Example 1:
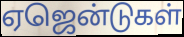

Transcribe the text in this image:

ஏஜென்டுகள்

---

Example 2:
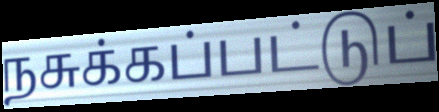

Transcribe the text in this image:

நசுக்கப்பட்டுப்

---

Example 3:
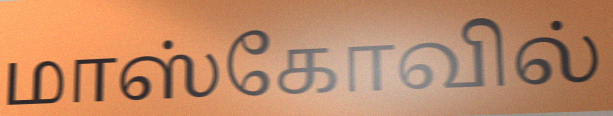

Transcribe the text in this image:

மாஸ்கோவில்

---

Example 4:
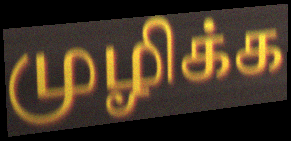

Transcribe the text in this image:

முழிக்க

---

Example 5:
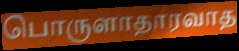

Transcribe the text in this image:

பொருளாதாரவாத